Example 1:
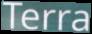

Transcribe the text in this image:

Terra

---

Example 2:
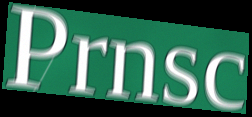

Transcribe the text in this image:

Prnsc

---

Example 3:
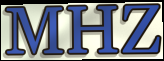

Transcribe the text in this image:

MHZ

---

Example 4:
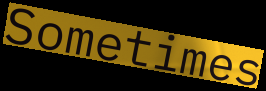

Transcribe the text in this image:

Sometimes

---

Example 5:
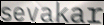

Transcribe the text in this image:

sevakar